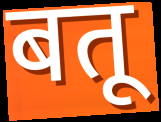
बतू